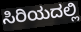
ಸಿರಿಯದಲ್ಲಿ